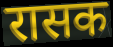
रासक